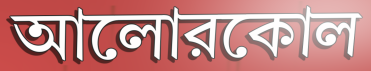
আলোরকোল